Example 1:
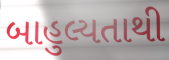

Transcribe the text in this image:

બાહુલ્યતાથી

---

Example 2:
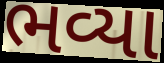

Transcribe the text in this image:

ભવ્યા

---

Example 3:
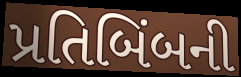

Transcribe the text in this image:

પ્રતિબિંબની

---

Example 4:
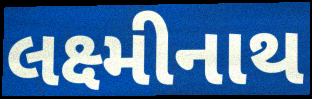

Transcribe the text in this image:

લક્ષ્મીનાથ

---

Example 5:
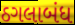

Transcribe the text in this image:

ઠગલાબંધ